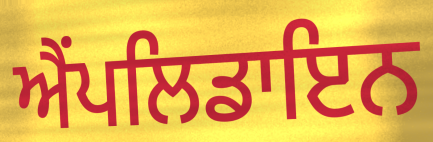
ਐੰਪਲਿਡਾਇਨ